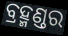
ବ୍ରହ୍ମଣ୍ଡର